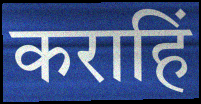
कराहिं